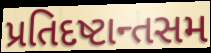
પ્રતિદષ્ટાન્તસમ